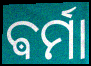
ଵର୍ମା